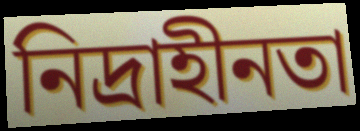
নিদ্ৰাহীনতা